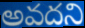
అవదని